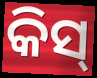
କିସ୍